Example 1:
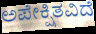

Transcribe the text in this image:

ಅಪೇಕ್ಷಿತವಿದೆ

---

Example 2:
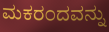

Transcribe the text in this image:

ಮಕರಂದವನ್ನು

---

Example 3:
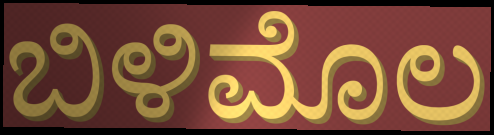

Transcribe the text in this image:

ಬಿಳಿಮೊಲ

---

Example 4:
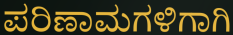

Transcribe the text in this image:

ಪರಿಣಾಮಗಳಿಗಾಗಿ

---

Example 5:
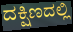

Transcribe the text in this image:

ದಕ್ಷಿಣದಲ್ಲಿ